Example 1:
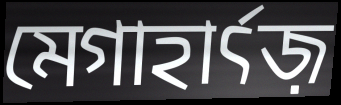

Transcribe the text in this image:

মেগাহার্ৎজ়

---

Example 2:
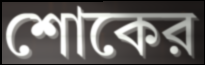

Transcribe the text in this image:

শোকের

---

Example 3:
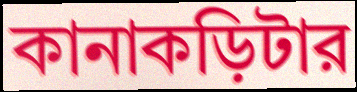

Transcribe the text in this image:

কানাকড়িটার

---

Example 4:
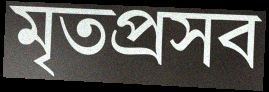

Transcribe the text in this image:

মৃতপ্রসব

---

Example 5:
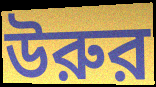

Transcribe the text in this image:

উরুর